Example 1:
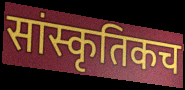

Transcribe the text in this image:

सांस्कृतिकच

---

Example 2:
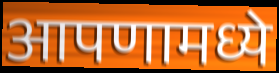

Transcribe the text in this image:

आपणामध्ये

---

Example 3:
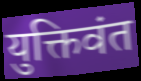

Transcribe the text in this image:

युक्तिवंत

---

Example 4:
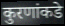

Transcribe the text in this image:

कुरणांकडे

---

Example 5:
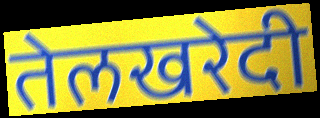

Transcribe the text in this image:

तेलखरेदी